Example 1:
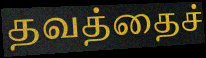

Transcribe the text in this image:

தவத்தைச்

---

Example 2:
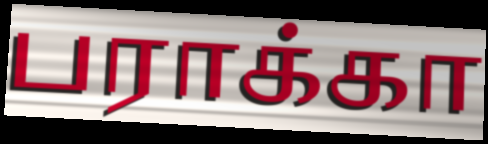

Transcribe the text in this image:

பராக்கா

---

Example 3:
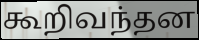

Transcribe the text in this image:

கூறிவந்தன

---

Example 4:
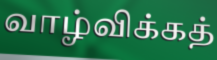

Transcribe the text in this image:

வாழ்விக்கத்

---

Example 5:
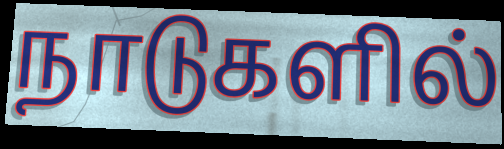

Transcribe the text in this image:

நாடுகளில்